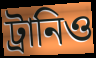
ট্রানিও